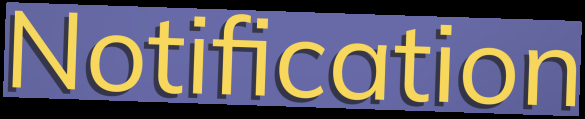
Notification